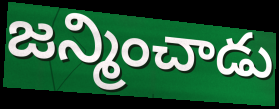
జన్మించాడు